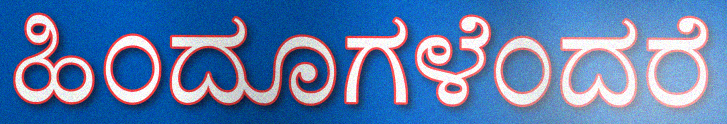
ಹಿಂದೂಗಳೆಂದರೆ